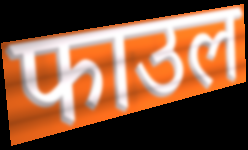
फाउल